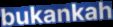
bukankah